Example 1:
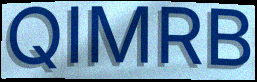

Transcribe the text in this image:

QIMRB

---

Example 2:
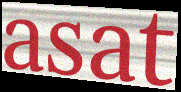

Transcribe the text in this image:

asat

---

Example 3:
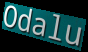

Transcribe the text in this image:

Odalu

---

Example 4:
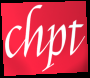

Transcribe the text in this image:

chpt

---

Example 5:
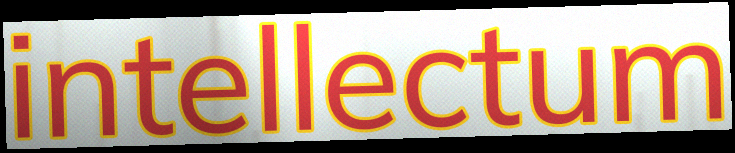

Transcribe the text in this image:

intellectum